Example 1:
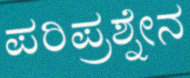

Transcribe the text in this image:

ಪರಿಪ್ರಶ್ನೇನ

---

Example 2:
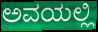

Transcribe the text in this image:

ಅವಯಲ್ಲಿ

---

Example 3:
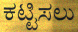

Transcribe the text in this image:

ಕಟ್ಟಿಸಲು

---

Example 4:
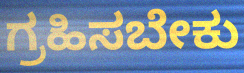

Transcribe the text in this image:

ಗ್ರಹಿಸಬೇಕು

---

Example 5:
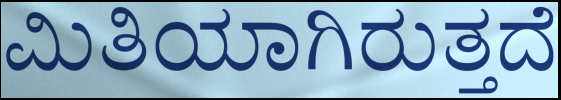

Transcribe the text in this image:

ಮಿತಿಯಾಗಿರುತ್ತದೆ